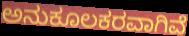
ಅನುಕೂಲಕರವಾಗಿವೆ